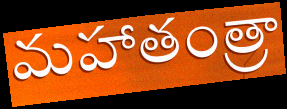
మహాతంత్రా